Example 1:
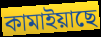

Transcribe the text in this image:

কামাইয়াছে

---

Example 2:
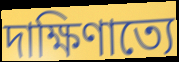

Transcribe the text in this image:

দাক্ষিণাত্যে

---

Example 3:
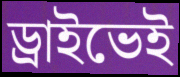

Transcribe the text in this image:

ড্রাইভেই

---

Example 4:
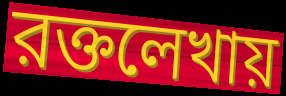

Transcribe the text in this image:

রক্তলেখায়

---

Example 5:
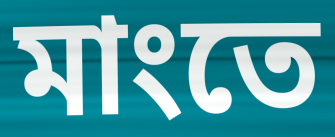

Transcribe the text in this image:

মাংতে